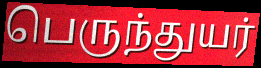
பெருந்துயர்